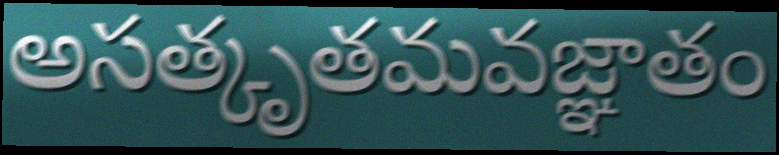
అసత్కృతమవజ్ఞాతం